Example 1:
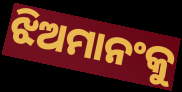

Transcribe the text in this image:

ଝିଅମାନଂକୁ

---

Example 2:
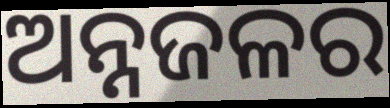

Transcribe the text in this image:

ଅନ୍ନଜଳର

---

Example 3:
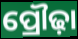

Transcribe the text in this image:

ପ୍ରୌଢ଼ା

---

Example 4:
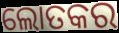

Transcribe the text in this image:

ଲୋତକର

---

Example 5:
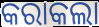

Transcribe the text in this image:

କରାକଲା